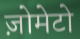
ज़ोमेटो